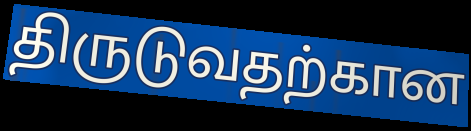
திருடுவதற்கான